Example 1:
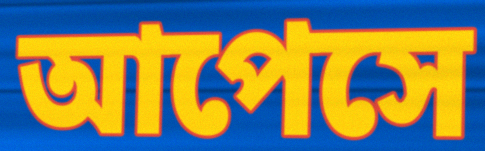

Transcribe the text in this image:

আপেসে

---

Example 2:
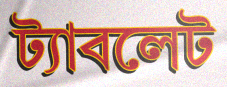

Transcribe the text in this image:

ট্যাবলেট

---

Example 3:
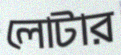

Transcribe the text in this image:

লোটার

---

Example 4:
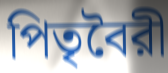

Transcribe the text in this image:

পিতৃবৈরী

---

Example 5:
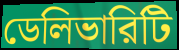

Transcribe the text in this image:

ডেলিভারিটি